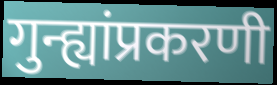
गुन्ह्यांप्रकरणी